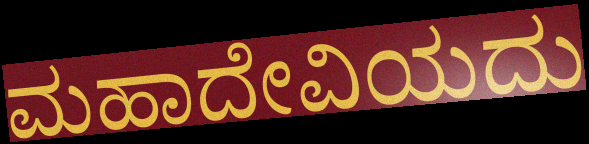
ಮಹಾದೇವಿಯದು